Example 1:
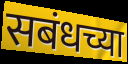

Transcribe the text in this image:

सबंधच्या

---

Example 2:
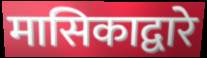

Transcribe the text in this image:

मासिकाद्वारे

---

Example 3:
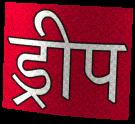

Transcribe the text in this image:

ड्रीप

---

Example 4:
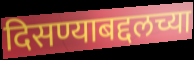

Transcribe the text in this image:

दिसण्याबद्दलच्या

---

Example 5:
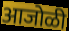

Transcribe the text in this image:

आजोळी